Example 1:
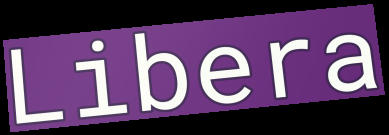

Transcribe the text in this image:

Libera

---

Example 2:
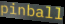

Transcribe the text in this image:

pinball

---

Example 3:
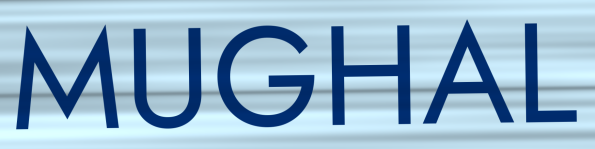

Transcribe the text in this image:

MUGHAL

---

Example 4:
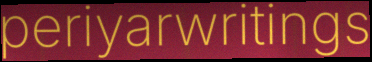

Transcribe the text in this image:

periyarwritings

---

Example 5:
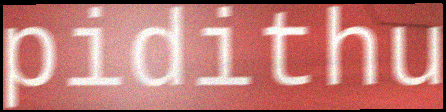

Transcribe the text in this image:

pidithu